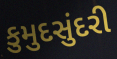
કુમુદસુંદરી